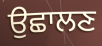
ਉਛਾਲਣ